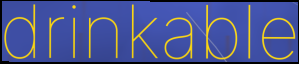
drinkable